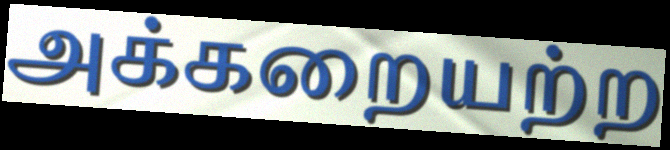
அக்கறையற்ற